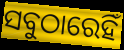
ସବୁଠାରେହିଁ